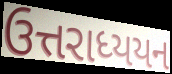
ઉત્તરાધ્યયન